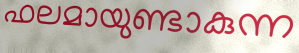
ഫലമായുണ്ടാകുന്ന